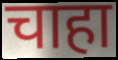
चाहा